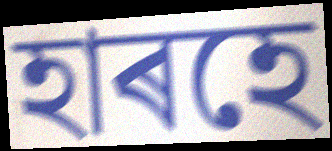
হাৰহে